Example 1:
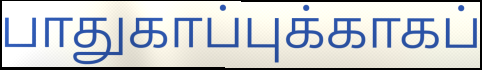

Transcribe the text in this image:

பாதுகாப்புக்காகப்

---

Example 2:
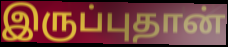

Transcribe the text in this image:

இருப்புதான்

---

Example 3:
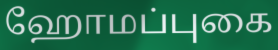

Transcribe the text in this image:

ஹோமப்புகை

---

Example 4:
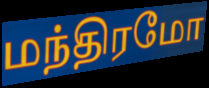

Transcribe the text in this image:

மந்திரமோ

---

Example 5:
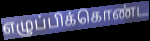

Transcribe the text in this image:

எழுப்பிக்கொண்ட